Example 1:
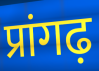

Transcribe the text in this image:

प्रांगढ़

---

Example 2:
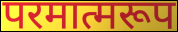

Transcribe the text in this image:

परमात्मरूप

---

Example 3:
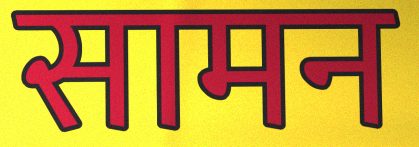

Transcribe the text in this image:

सामन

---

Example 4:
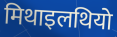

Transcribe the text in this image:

मिथाइलथियो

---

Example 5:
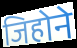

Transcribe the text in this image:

जिहोने